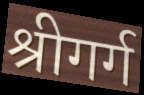
श्रीगर्ग